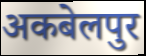
अकबेलपुर